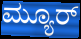
ಮ್ಯೂರ್